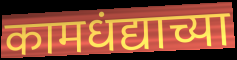
कामधंद्याच्या